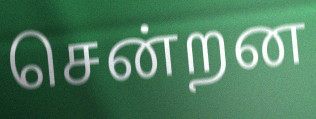
சென்றன